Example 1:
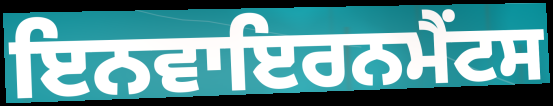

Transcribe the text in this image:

ਇਨਵਾਇਰਨਮੈਂਟਸ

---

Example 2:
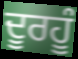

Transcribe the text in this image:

ਦੂਰਹੂੰ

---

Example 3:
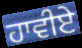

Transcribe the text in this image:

ਹਾਵੀਏ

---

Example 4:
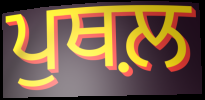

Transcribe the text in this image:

ਪੁਥਲ਼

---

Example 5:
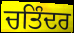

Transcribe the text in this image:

ਚਤਿੰਦਰ